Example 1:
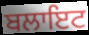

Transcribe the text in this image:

ਬਲਾਇਟ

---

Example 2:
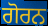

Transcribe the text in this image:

ਗੋਰਨ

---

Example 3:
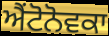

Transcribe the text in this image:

ਐਂਟੋਨੋਵਕਾ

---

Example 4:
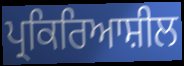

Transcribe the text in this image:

ਪ੍ਰਕਿਰਿਆਸ਼ੀਲ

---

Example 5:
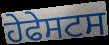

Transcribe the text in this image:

ਹੇਫੇਸਟਸ